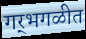
गर्भगळीत